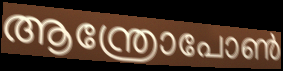
ആന്ത്രോപോൺ